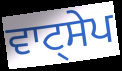
ਵਾਟ੍ਸੇਪ